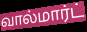
வால்மார்ட்